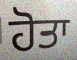
ਹੋਤਾ